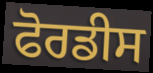
ਫੋਰਡੀਸ